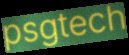
psgtech